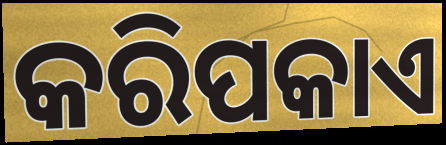
କରିପକାଏ